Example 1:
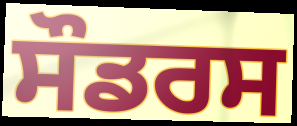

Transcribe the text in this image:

ਸੌਡਰਸ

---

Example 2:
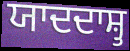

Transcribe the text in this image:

ਯਾਦਦਾਸ਼੍ਤ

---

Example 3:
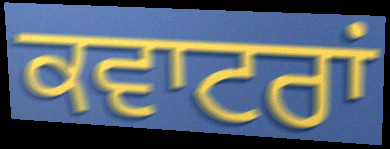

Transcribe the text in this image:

ਕਵਾਟਰਾਂ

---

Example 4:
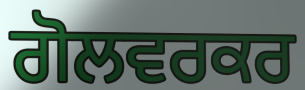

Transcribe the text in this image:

ਗੋਲਵਰਕਰ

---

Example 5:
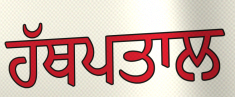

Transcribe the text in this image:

ਹੱਥਪਤਾਲ